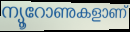
ന്യൂറോണുകളാണ്